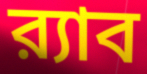
র‍্যাব